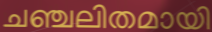
ചഞ്ചലിതമായി